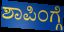
ಶಾಪಿಂಗ್ಗೆ